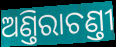
ଅଣ୍ତିରାଚଣ୍ତୀ